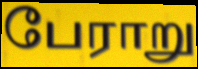
பேராறு